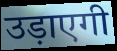
उड़ाएगी